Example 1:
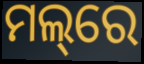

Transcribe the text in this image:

ମଲ୍‌ରେ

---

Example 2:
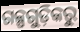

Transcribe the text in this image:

ଗଳ୍ପଗୁଡ଼ିକରୁ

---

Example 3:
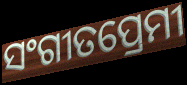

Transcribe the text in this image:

ସଂଗୀତପ୍ରେମୀ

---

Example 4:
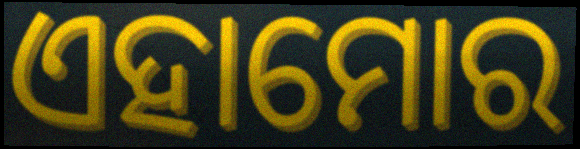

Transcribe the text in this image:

ଏହାମୋର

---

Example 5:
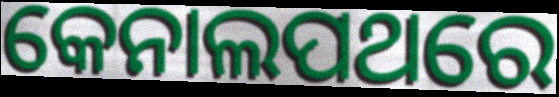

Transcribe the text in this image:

କେନାଲପଥରେ